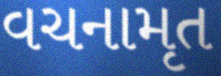
વચનામૃત